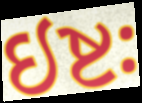
ઇષ્ટઃ